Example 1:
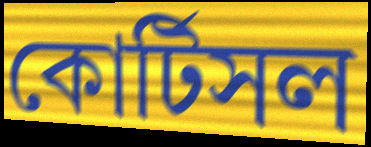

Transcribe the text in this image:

কোর্টিসল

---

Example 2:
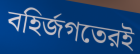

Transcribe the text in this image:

বহির্জগতেরই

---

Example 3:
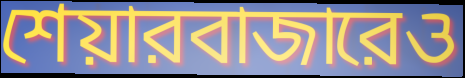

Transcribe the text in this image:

শেয়ারবাজারেও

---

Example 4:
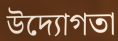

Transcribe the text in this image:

উদ্যোগতা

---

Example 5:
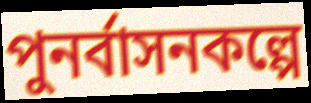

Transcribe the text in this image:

পুনর্বাসনকল্পে